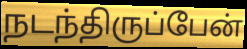
நடந்திருப்பேன்